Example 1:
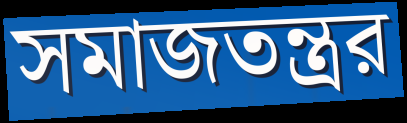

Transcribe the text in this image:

সমাজতন্ত্রর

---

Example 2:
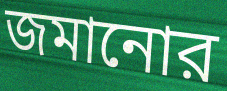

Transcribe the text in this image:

জমানোর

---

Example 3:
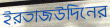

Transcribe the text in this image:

ইরতাজউদিনের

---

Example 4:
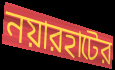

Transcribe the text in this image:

নয়ারহাটের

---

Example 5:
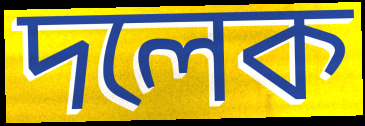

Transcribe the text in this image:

দলেক